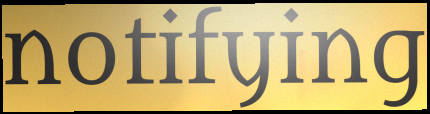
notifying